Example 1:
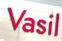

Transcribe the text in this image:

Vasil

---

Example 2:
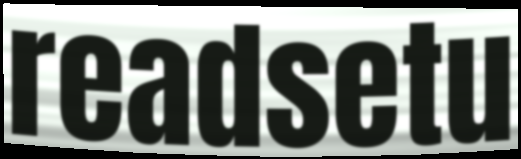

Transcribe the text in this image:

readsetu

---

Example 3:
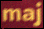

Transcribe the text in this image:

maj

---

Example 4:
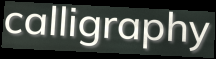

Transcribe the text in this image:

calligraphy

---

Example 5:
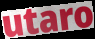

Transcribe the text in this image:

utaro